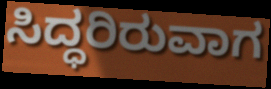
ಸಿದ್ಧರಿರುವಾಗ